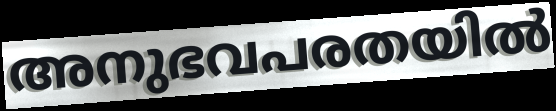
അനുഭവപരതയിൽ